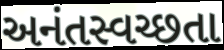
અનંતસ્વચ્છતા